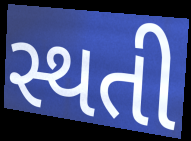
સ્થતી